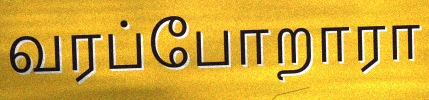
வரப்போறாரா